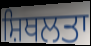
ਸ਼ਿਥਲਤਾ